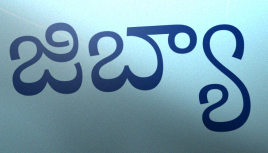
జిబ్యా